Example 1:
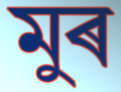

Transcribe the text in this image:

মুৰ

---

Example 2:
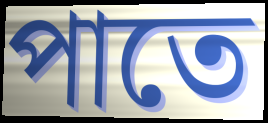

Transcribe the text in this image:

পাতে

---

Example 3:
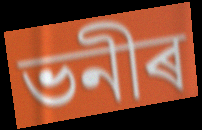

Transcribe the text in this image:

ভনীৰ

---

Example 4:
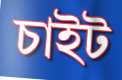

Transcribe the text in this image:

চাইট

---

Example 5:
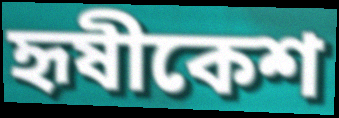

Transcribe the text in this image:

হৃষীকেশ